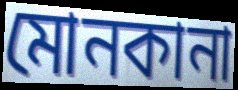
মোনকানা